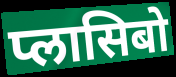
प्लासिबो